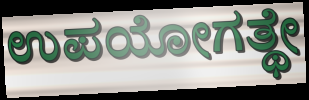
ಉಪಯೋಗತ್ಥೇ